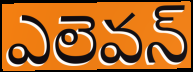
ఎలెవన్